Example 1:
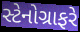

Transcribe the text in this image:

સ્ટેનોગ્રાફરે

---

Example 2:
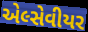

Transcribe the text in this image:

એલ્સેવીયર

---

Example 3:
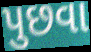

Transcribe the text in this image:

પુછવા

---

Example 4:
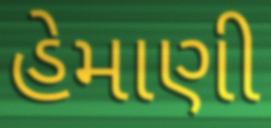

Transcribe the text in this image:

હેમાણી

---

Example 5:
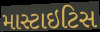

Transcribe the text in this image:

માસ્ટાઇટિસ